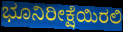
ಭೂನಿರೀಕ್ಷೆಯಿರಲಿ